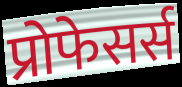
प्रोफेसर्स